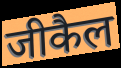
जीकैल